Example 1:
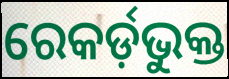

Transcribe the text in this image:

ରେକର୍ଡ଼ଭୁକ୍ତ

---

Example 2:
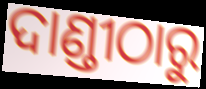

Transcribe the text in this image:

ଦାଣ୍ଡୀଠାରୁ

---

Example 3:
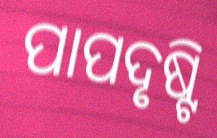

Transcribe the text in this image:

ପାପଦୃଷ୍ଟି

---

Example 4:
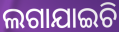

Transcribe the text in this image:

ଲଗାଯାଇଚି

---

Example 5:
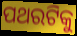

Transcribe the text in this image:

ପଥରଟିକୁ